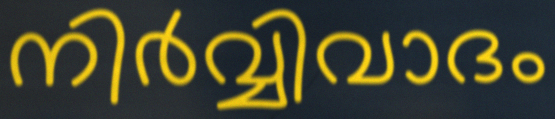
നിർവ്വിവാദം